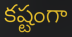
కష్టంగా